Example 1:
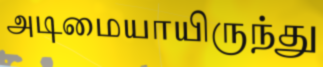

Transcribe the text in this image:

அடிமையாயிருந்து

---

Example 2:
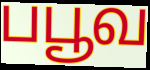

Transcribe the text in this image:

பபூவ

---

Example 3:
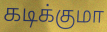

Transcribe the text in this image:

கடிக்குமா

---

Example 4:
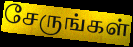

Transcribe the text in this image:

சேருங்கள்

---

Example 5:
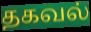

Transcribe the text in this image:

தகவல்